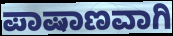
ಪಾಷಾಣವಾಗಿ